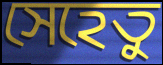
সেহেতু